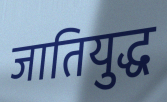
जातियुद्ध